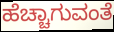
ಹೆಚ್ಚಾಗುವಂತೆ